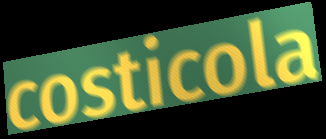
costicola